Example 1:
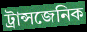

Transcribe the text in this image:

ট্রান্সজেনিক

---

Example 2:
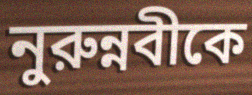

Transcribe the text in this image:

নুরুন্নবীকে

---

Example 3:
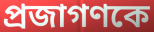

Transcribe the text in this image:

প্রজাগণকে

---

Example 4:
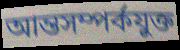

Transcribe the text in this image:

আন্তসম্পর্কযুক্ত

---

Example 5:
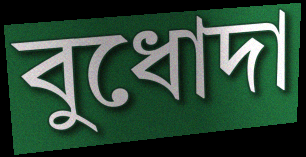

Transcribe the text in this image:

বুধোদা